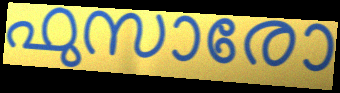
ഫുസാരോ